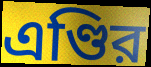
এণ্ডির